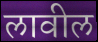
लावील